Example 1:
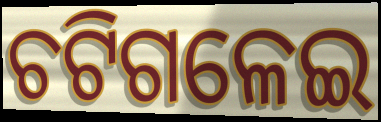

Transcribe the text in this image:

ଚଟିଗଳେଇ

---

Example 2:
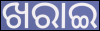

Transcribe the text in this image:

ଖରାଇ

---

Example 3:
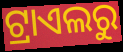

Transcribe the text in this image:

ଟ୍ରାଏଲରୁ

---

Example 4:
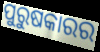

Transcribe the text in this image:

ପୁରୁଷକାରର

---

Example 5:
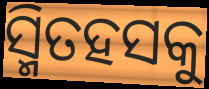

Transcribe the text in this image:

ସ୍ମିତହସକୁ